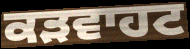
ਕੜਵਾਹਟ